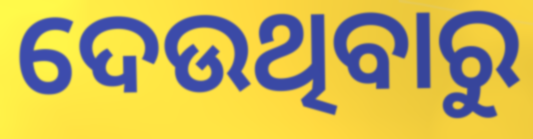
ଦେଉଥିବାରୁ